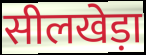
सीलखेड़ा